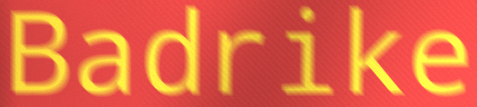
Badrike